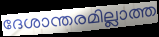
ദേശാന്തരമില്ലാത്ത